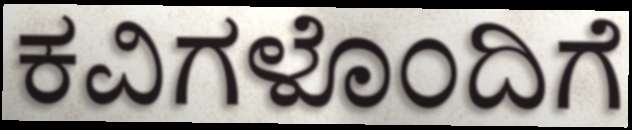
ಕವಿಗಳೊಂದಿಗೆ